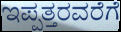
ಇಪ್ಪತ್ತರವರೆಗೆ